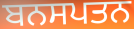
ਬਨਸਪਤਨ